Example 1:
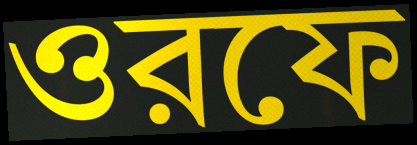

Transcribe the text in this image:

ওরফে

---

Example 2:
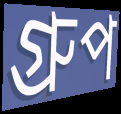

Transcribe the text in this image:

গ্রুপ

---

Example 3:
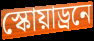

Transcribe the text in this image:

স্কোয়াড্রনে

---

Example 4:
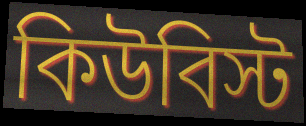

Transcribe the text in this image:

কিউবিস্ট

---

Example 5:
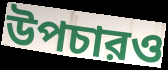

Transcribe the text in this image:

উপচারও